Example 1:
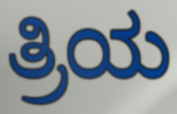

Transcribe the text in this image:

ತ್ರಿಯ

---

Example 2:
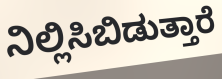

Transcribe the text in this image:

ನಿಲ್ಲಿಸಿಬಿಡುತ್ತಾರೆ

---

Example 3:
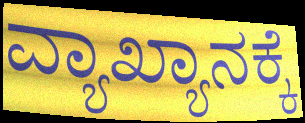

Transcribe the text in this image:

ವ್ಯಾಖ್ಯಾನಕ್ಕೆ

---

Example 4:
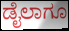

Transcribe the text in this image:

ಡೈಲಾಗೂ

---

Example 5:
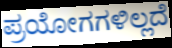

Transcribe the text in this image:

ಪ್ರಯೋಗಗಳಿಲ್ಲದೆ